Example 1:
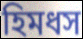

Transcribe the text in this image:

হিমধস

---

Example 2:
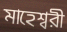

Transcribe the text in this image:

মাহেশ্বরী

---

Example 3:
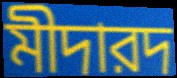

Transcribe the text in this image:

মীদারদ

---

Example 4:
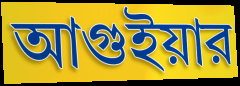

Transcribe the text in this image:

আগুইয়ার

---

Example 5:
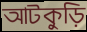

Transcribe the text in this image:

আটকুড়ি